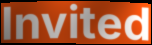
Invited